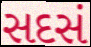
સદસં